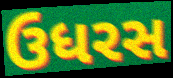
ઉધરસ